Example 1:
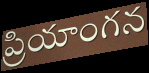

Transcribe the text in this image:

ప్రియాంగన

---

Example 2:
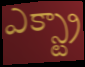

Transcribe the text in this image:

ఎక్స్ట్రా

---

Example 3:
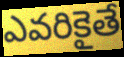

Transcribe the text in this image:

ఎవరికైతే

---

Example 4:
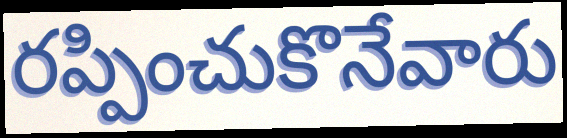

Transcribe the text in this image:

రప్పించుకొనేవారు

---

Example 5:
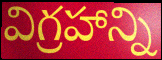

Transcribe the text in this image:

విగ్రహాన్ని